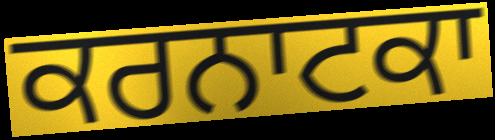
ਕਰਨਾਟਕਾ